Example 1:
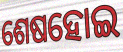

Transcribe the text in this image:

ଶେଷହୋଇ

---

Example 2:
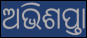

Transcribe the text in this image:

ଅଭିଶପ୍ତା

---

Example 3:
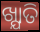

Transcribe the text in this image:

ଖ୍ଯାତି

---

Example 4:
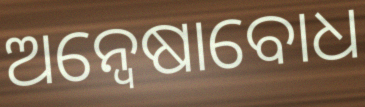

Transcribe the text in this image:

ଅନ୍ୱେଷାବୋଧ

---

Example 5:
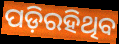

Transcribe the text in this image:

ପଡ଼ିରହିଥିବ